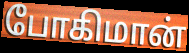
போகிமான்